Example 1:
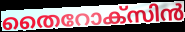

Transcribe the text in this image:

തൈറോക്സിൻ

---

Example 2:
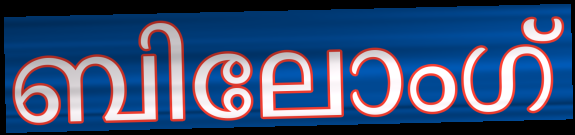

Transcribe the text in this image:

ബിലോംഗ്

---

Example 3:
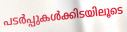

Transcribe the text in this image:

പടർപ്പുകൾക്കിടയിലൂടെ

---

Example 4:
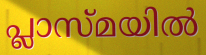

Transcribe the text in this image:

പ്ലാസ്മയിൽ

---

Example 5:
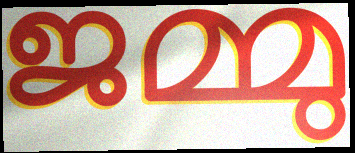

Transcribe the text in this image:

ജമ്മു